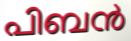
പിബൻ